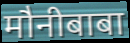
मौनीबाबा